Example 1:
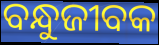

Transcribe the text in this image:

ବନ୍ଧୁଜୀବକ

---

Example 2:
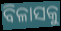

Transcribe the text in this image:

ବିଳାସକୁ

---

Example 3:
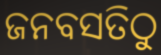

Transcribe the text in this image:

ଜନବସତିଠୁ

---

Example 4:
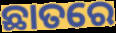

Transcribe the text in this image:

ଛାତରେ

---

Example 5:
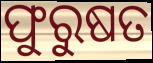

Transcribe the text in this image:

ଫୁରୁଷତ